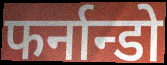
फर्नान्डो